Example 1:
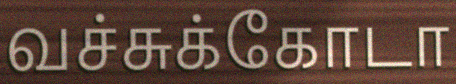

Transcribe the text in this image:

வச்சுக்கோடா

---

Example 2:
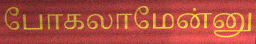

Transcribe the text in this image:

போகலாமேன்னு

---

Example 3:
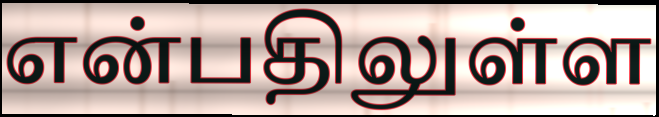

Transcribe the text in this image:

என்பதிலுள்ள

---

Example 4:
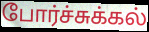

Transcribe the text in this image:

போர்ச்சுக்கல்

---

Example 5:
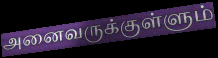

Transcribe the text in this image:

அனைவருக்குள்ளும்